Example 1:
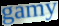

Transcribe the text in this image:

gamy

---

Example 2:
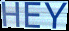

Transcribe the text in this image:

HEY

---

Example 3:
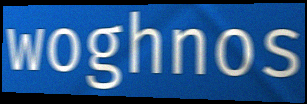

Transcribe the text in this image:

woghnos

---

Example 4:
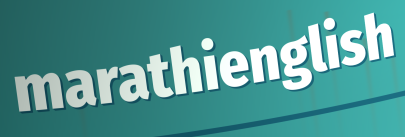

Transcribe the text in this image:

marathienglish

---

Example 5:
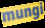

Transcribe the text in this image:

mungi